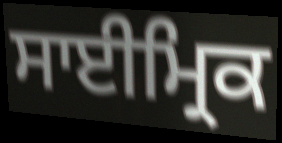
ਸਾਈਮ੍ਰਿਕ